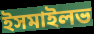
ইসমাইলভ